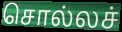
சொல்லச்